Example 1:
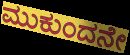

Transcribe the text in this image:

ಮುಕುಂದನೇ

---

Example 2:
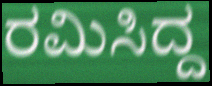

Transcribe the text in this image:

ರಮಿಸಿದ್ದ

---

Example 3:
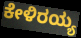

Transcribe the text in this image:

ಕೇಳಿರಯ್ಯ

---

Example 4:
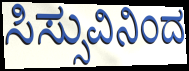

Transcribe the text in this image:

ಸಿಸ್ಸುವಿನಿಂದ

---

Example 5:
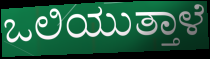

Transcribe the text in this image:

ಒಲಿಯುತ್ತಾಳೆ